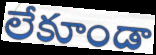
లేకూండా